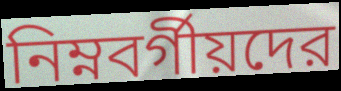
নিম্নবর্গীয়দের